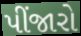
પીંજારો